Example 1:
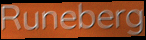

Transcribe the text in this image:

Runeberg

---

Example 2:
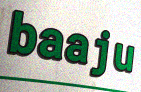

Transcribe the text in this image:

baaju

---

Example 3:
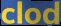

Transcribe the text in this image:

clod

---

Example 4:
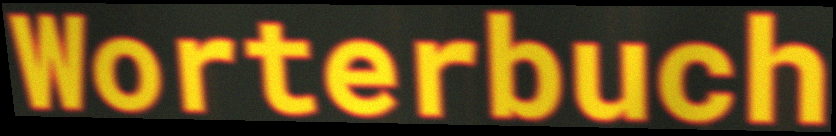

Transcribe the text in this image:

Worterbuch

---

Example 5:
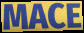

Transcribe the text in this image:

MACE